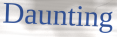
Daunting